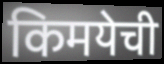
किमयेची